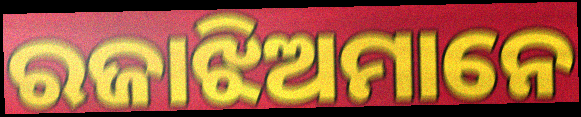
ରଜାଝିଅମାନେ